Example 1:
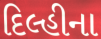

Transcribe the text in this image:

દિલ્હીના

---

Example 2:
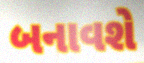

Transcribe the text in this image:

બનાવશે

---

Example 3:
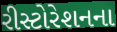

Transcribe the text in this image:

રીસ્ટોરેશનના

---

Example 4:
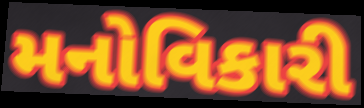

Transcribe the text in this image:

મનોવિકારી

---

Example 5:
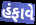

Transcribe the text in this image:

હંફાવે